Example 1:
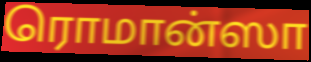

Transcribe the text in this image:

ரொமான்ஸா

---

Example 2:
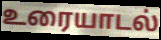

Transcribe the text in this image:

உரையாடல்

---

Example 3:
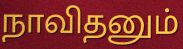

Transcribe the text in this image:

நாவிதனும்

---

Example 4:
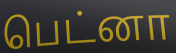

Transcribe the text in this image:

பெட்னா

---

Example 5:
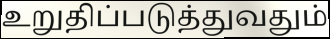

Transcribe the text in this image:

உறுதிப்படுத்துவதும்